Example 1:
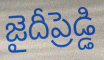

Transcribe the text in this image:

జైదీప్రెడ్డి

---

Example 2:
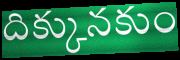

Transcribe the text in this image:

దిక్కునకుం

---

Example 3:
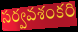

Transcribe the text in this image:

సర్వవశంకరి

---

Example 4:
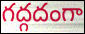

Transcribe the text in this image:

గద్గదంగా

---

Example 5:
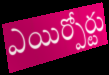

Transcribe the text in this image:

ఎయిర్పోర్టు